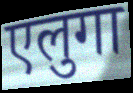
एलुगा